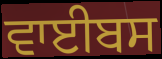
ਵਾਈਬਸ